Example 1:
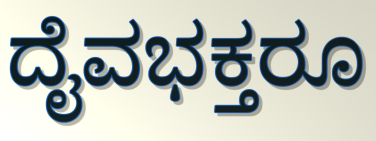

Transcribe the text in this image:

ದೈವಭಕ್ತರೂ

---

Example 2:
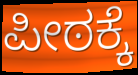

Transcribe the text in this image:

ಪೀಠಕ್ಕೆ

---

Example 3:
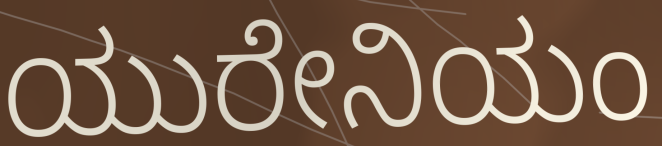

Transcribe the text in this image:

ಯುರೇನಿಯಂ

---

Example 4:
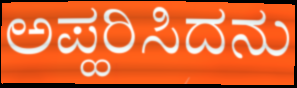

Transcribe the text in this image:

ಅಪ್ಹರಿಸಿದನು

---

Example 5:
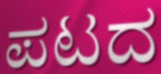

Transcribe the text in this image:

ಪಟದ